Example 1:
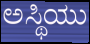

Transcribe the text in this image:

ಅಸ್ಥಿಯು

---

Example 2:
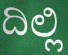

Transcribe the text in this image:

ದಿಲ್ಲಿ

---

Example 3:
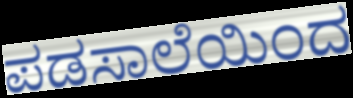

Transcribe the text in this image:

ಪಡಸಾಲೆಯಿಂದ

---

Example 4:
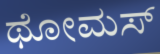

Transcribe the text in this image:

ಥೋಮಸ್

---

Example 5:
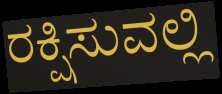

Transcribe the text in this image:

ರಕ್ಷಿಸುವಲ್ಲಿ